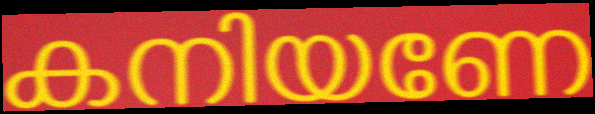
കനിയണേ